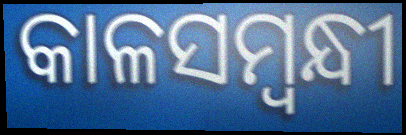
କାଳସମ୍ଵନ୍ଧୀ